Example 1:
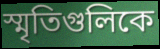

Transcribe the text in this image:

স্মৃতিগুলিকে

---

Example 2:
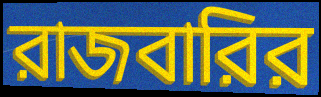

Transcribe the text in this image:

রাজবারির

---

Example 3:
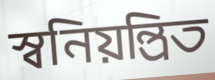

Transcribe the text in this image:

স্বনিয়ন্ত্রিত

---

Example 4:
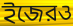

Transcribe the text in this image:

ইজেরও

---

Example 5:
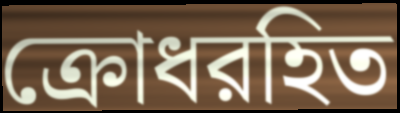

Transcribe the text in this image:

ক্রোধরহিত